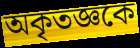
অকৃতজ্ঞকে